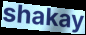
shakay